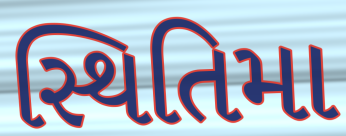
સ્થિતિમા